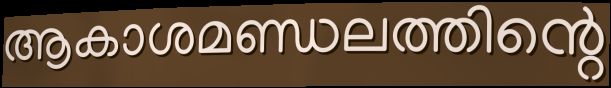
ആകാശമണ്ഡലത്തിന്റെ